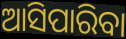
ଆସିପାରିବା